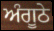
ਅੰਗੂਠੇ